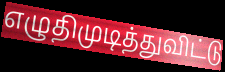
எழுதிமுடித்துவிட்டு